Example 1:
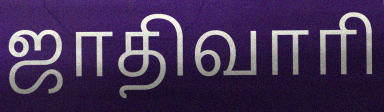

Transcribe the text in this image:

ஜாதிவாரி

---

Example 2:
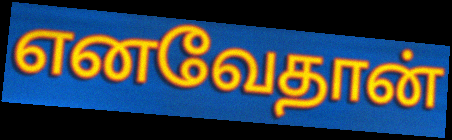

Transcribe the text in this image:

எனவேதான்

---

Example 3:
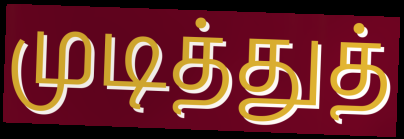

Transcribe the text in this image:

முடித்துத்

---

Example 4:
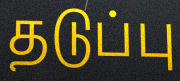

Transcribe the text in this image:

தடுப்பு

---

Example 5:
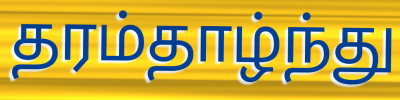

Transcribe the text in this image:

தரம்தாழ்ந்து